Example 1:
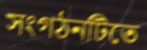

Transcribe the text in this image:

সংগঠনটিতে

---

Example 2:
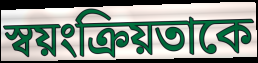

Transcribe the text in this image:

স্বয়ংক্রিয়তাকে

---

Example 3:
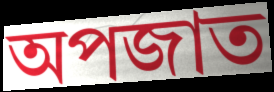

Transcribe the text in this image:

অপজাত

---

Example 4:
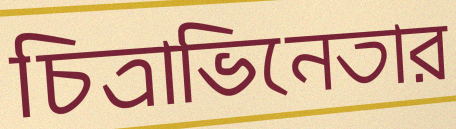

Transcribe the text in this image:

চিত্রাভিনেতার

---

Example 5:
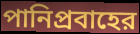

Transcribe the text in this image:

পানিপ্রবাহের